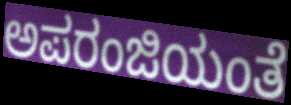
ಅಪರಂಜಿಯಂತೆ